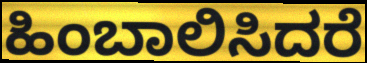
ಹಿಂಬಾಲಿಸಿದರೆ